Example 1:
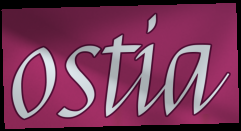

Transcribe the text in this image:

ostia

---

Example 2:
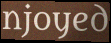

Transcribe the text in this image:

njoyed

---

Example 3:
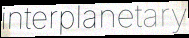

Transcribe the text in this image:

interplanetary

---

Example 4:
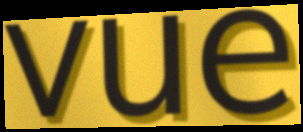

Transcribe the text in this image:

vue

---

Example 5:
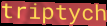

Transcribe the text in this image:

triptych